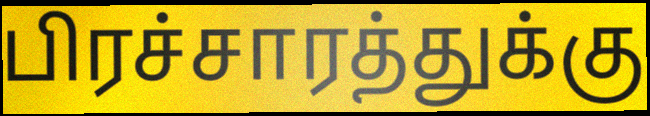
பிரச்சாரத்துக்கு